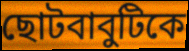
ছোটবাবুটিকে